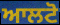
ਆਲਟੋ